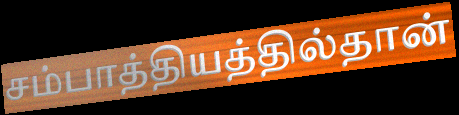
சம்பாத்தியத்தில்தான்